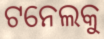
ଟନେଲକୁ